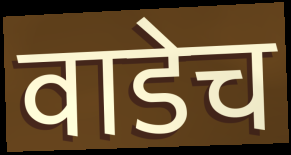
वाडेच